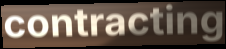
contracting